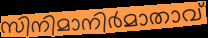
സിനിമാനിർമാതാവ്